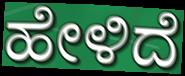
ಹೇಳಿದೆ